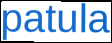
patula